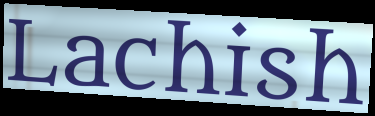
Lachish